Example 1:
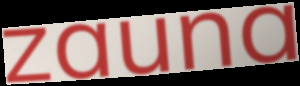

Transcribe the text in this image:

zauna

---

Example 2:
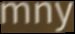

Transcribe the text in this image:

mny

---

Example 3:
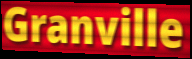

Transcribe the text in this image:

Granville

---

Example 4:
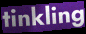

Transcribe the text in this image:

tinkling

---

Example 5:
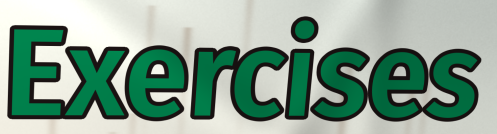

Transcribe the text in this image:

Exercises